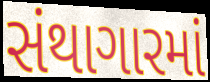
સંથાગારમાં